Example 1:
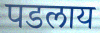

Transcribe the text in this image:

पडलाय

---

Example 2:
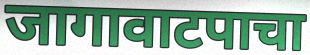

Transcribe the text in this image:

जागावाटपाचा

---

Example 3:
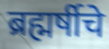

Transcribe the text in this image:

ब्रह्मर्षीचे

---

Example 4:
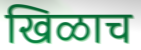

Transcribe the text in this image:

खिळाच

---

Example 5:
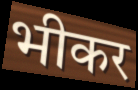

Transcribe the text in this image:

भीकर